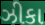
ઝીકા